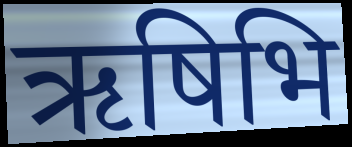
ऋषिभि